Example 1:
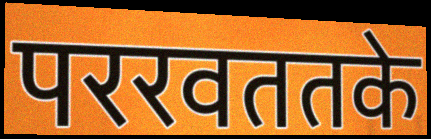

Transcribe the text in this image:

पररवततके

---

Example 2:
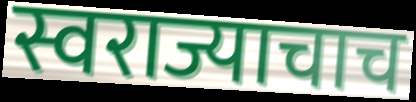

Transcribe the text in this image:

स्वराज्याचाच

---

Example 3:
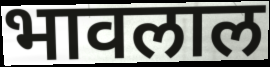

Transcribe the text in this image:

भावलाल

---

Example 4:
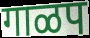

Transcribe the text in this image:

गाळप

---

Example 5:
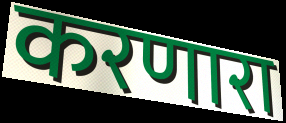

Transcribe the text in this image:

करणारा